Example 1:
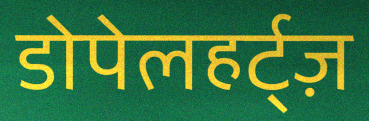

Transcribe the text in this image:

डोपेलहर्ट्ज़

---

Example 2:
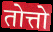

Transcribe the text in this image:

तोत्तो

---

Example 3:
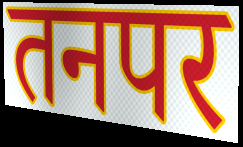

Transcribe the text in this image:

तनपर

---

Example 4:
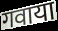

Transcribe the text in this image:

गवाया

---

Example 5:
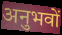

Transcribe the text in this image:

अनुभवों